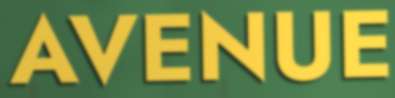
AVENUE